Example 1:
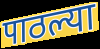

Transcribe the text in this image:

पाठल्या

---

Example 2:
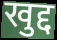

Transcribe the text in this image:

खुद्द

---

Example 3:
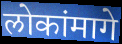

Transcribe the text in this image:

लोकांमागे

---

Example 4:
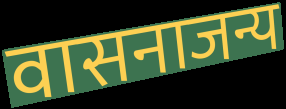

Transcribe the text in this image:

वासनाजन्य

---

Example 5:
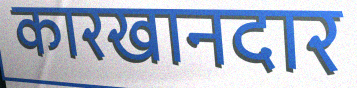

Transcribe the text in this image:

कारखानदार